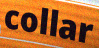
collar